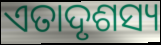
ଏତାଦୃଶସ୍ୟ